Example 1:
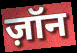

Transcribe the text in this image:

ज़ॉन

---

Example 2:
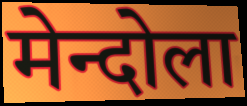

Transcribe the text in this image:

मेन्दोला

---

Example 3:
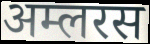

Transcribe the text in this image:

अम्लरस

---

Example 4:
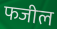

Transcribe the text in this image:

फजील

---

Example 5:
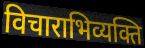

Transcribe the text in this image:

विचाराभिव्यक्ति